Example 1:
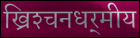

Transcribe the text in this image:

ख्रिश्चनधर्मीय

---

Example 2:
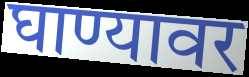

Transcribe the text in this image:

घाण्यावर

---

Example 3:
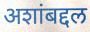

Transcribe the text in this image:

अशांबद्दल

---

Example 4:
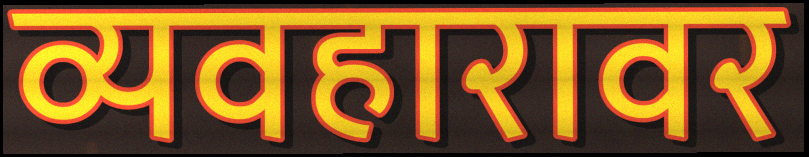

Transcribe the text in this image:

व्यवहारावर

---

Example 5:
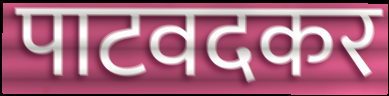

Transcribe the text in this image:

पाटवदकर